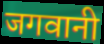
जगवानी